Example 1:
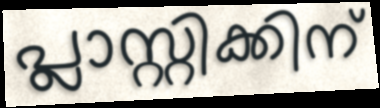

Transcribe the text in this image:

പ്ലാസ്റ്റിക്കിന്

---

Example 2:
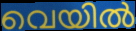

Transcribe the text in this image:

വെയിൽ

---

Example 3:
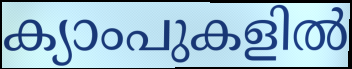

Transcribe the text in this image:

ക്യാംപുകളിൽ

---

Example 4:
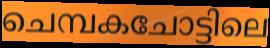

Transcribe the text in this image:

ചെമ്പകചോട്ടിലെ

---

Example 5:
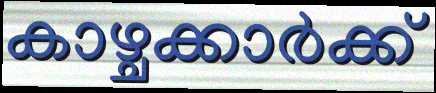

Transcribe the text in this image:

കാഴ്ചക്കാർക്ക്